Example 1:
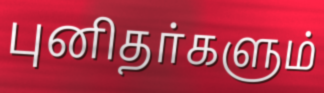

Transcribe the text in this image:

புனிதர்களும்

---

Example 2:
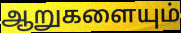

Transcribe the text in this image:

ஆறுகளையும்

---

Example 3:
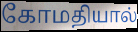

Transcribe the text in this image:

கோமதியால்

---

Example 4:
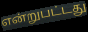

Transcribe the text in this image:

என்றுபட்டது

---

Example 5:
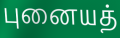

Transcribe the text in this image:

புனையத்